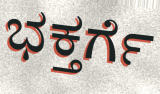
ಭಕ್ತರ್ಗೆ